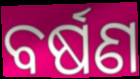
ବର୍ଷଣ